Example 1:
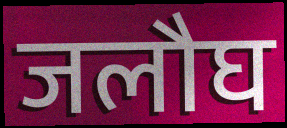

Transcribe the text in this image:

जलौघ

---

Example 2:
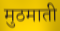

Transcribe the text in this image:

मुठमाती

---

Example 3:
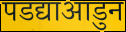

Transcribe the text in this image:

पडद्याआडुन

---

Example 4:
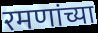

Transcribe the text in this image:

रमणांच्या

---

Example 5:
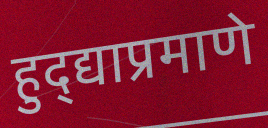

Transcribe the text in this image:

हुद्द्याप्रमाणे